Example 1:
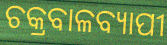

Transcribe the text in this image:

ଚକ୍ରବାଳବ୍ୟାପୀ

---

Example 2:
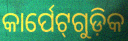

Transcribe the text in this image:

କାର୍ପେଟ୍‌ଗୁଡ଼ିକ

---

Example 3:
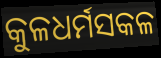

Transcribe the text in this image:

କୁଳଧର୍ମସକଳ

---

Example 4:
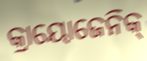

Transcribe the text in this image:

କ୍ରାୟୋଜେନିକ୍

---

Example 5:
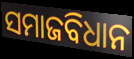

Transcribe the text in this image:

ସମାଜବିଧାନ